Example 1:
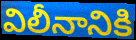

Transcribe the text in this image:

విలీనానికి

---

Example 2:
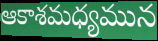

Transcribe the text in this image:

ఆకాశమధ్యమున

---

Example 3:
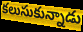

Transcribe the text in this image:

కలుసుకున్నాడు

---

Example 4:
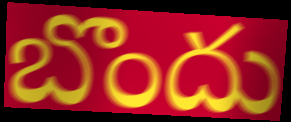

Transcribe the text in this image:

బొందు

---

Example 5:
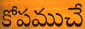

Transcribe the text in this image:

కోపముచే